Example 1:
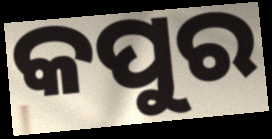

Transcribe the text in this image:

କପୁର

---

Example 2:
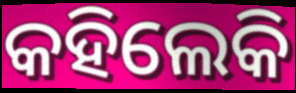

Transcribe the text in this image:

କହିଲେକି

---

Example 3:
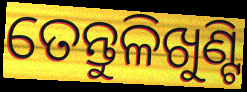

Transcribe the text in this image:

ତେନ୍ତୁଳିଖୁଣ୍ଟି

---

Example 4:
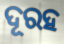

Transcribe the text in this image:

ଦୂରହ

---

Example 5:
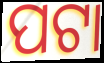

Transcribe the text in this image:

ପଟା